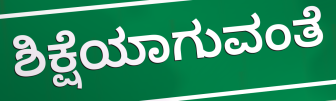
ಶಿಕ್ಷೆಯಾಗುವಂತೆ